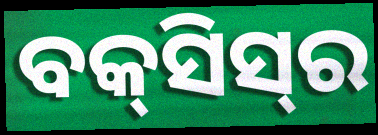
ବକ୍‌ସିସ୍‌ର